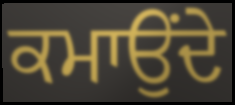
ਕਮਾਉਂਦੇ